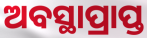
ଅବସ୍ଥାପ୍ରାପ୍ତ